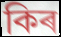
কিৰ